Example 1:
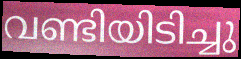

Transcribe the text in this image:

വണ്ടിയിടിച്ചു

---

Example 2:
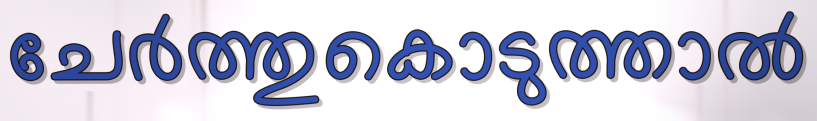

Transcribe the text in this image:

ചേർത്തുകൊടുത്താൽ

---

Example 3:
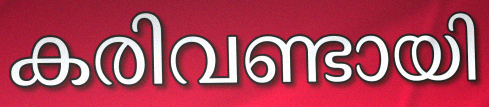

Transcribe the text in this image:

കരിവണ്ടായി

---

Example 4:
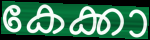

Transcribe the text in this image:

കേക്കാ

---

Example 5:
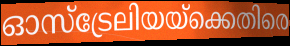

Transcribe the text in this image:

ഓസ്ട്രേലിയയ്ക്കെതിരെ